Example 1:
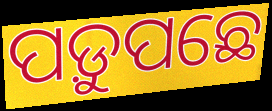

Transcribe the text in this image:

ପଡ଼ୁପଛେ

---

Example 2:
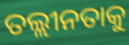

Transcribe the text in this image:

ତଲ୍ଲୀନତାକୁ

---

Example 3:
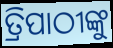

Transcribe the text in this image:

ତ୍ରିପାଠୀଙ୍କୁ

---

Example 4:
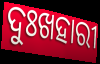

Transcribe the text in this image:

ଦୁଃଖହାରୀ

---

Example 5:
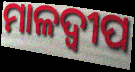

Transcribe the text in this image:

ମାଳଦ୍ଵୀପ